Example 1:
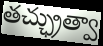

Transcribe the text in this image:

తచ్ఛ్రుత్వా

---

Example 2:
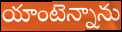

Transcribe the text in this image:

యాంటెన్నాను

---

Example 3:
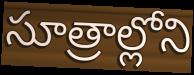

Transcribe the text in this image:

సూత్రాల్లోని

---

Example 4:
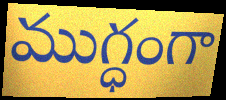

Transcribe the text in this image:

ముగ్ధంగా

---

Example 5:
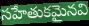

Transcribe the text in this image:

సహేతుకమైనవి